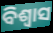
ବିଶ୍ଵାସ